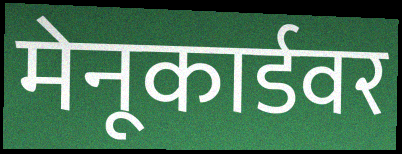
मेनूकार्डवर